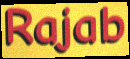
Rajab